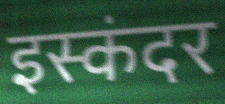
इस्कंदर